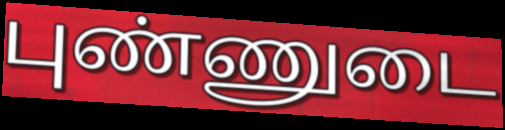
புண்ணுடை